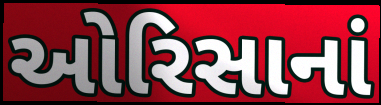
ઓરિસાનાં